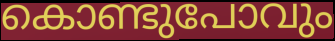
കൊണ്ടുപോവും